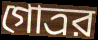
গোত্রর